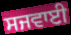
ਸਜਵਾਈ